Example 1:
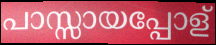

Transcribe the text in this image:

പാസ്സായപ്പോള്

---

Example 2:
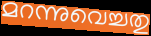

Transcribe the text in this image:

മറന്നുവെച്ചതു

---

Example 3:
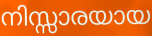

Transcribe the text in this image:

നിസ്സാരയായ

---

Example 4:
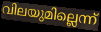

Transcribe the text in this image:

വിലയുമില്ലെന്ന്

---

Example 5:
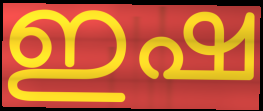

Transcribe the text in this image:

ഇഷ